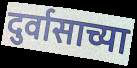
दुर्वासाच्या